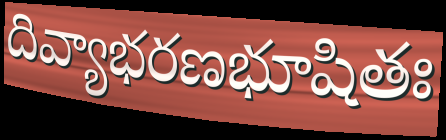
దివ్యాభరణభూషితః